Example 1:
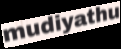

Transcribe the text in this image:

mudiyathu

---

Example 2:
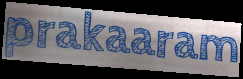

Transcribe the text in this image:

prakaaram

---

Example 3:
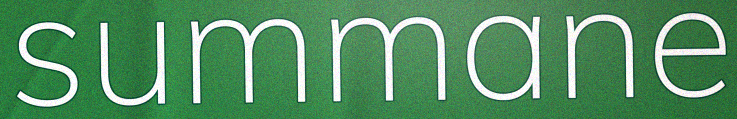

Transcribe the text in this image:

summane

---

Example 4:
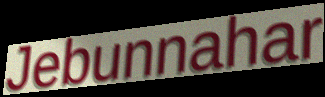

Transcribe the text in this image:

Jebunnahar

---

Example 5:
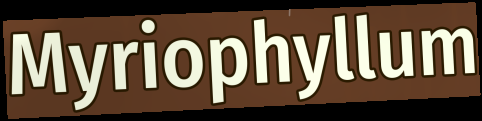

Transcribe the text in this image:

Myriophyllum